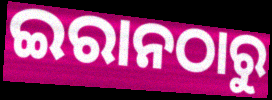
ଇରାନଠାରୁ